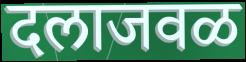
दलाजवळ